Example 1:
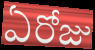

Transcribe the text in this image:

ఏరోజు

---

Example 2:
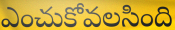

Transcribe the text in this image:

ఎంచుకోవలసింది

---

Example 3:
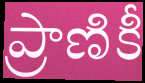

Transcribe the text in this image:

ప్రాణికీ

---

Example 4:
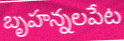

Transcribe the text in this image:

బృహన్నలపేట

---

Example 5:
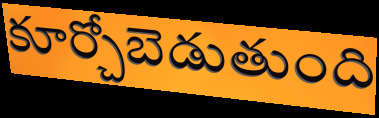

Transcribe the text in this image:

కూర్చోబెడుతుంది